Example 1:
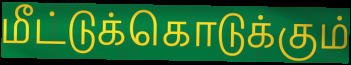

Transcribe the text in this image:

மீட்டுக்கொடுக்கும்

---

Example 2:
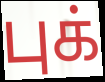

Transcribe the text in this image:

புக்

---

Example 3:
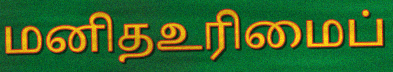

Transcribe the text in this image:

மனிதஉரிமைப்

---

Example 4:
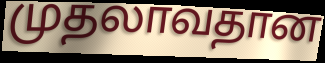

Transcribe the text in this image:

முதலாவதான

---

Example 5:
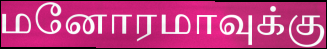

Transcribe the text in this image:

மனோரமாவுக்கு